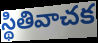
స్థితివాచక